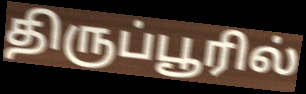
திருப்பூரில்